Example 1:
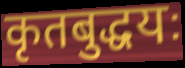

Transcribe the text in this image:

कृतबुद्धयः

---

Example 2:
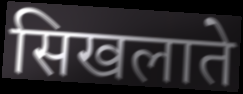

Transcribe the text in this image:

सिखलाते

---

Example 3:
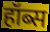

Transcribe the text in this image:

हॉब्स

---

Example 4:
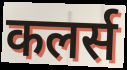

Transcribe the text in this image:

कलर्स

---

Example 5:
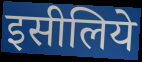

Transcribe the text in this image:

इसीलिये